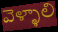
వెళ్ళాలి